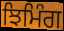
ਝਿਮਿੰਗ